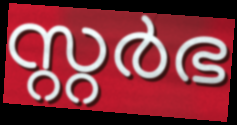
സ്റ്റർഭ